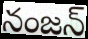
నంజన్